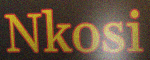
Nkosi